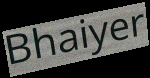
Bhaiyer